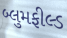
બ્લુમફીલ્ડ